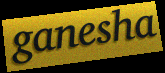
ganesha